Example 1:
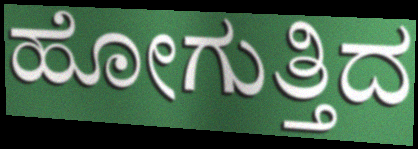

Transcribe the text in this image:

ಹೋಗುತ್ತಿದ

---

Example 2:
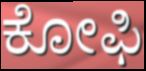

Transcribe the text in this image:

ಕೋಫಿ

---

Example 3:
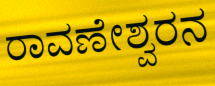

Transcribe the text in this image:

ರಾವಣೇಶ್ವರನ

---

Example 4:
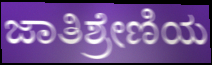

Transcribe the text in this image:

ಜಾತಿಶ್ರೇಣಿಯ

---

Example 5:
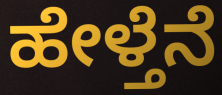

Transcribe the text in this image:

ಹೇಳ್ತೆನೆ